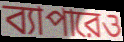
ব্যাপারেও